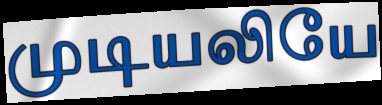
முடியலியே